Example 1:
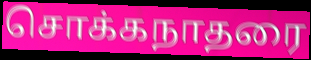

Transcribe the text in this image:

சொக்கநாதரை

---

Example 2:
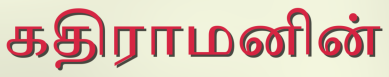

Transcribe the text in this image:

கதிராமனின்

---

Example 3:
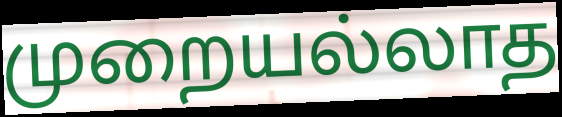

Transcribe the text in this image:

முறையல்லாத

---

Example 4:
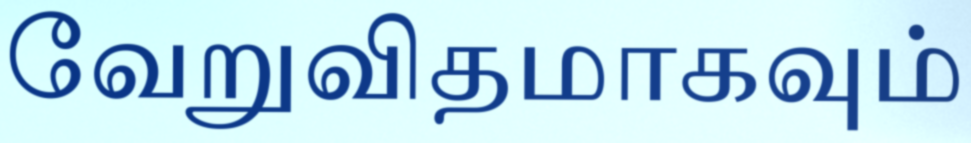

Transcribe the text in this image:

வேறுவிதமாகவும்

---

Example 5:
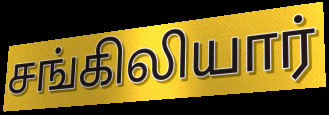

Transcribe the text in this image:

சங்கிலியார்